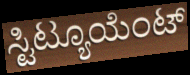
ಸ್ಟಿಟ್ಯೂಯೆಂಟ್